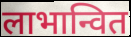
लाभान्वित